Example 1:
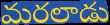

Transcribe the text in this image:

మరలాడు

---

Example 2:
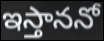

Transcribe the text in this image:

ఇస్తాననో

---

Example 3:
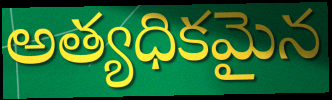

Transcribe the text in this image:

అత్యధికమైన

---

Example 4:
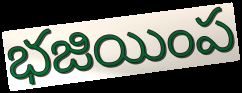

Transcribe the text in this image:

భజియింప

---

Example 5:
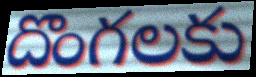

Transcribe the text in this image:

దొంగలకు